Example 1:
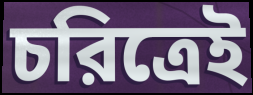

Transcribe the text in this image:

চরিত্রেই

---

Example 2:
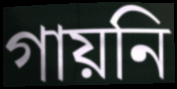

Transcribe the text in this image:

গায়নি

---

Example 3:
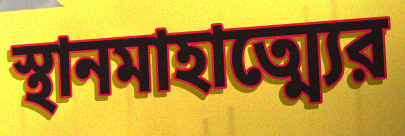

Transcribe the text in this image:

স্থানমাহাত্ম্যের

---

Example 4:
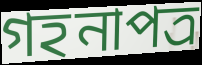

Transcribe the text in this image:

গহনাপত্র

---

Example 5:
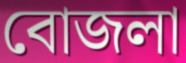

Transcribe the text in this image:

বোজলা